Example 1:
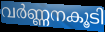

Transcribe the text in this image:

വർണ്ണനകൂടി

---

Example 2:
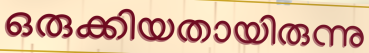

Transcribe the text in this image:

ഒരുക്കിയതായിരുന്നു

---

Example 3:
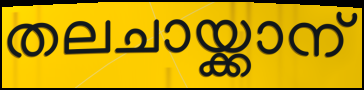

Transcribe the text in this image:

തലചായ്ക്കാന്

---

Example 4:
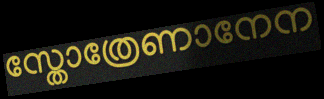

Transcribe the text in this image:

സ്തോത്രേണാനേന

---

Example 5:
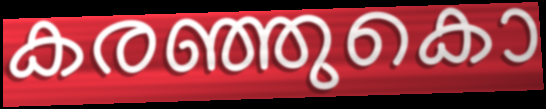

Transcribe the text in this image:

കരഞ്ഞുകൊ